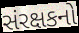
સંરક્ષકનો